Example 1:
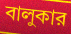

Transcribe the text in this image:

বালুকার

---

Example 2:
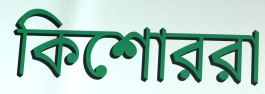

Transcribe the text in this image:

কিশোররা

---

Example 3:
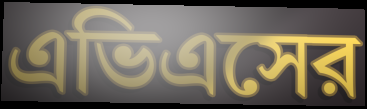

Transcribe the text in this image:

এভিএসের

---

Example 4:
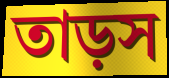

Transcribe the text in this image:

তাড়স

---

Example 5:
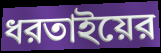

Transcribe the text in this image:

ধরতাইয়ের